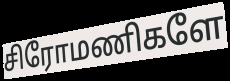
சிரோமணிகளே